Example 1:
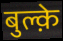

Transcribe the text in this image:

बुल्क़े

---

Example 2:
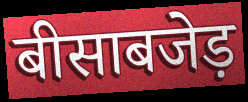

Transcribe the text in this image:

बीसाबजेड़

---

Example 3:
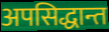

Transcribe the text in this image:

अपसिद्धान्त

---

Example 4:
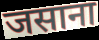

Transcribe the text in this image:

जसाना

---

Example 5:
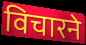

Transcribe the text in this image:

विचारने